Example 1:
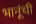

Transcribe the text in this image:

भानूंची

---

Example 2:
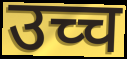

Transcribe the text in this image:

उच्च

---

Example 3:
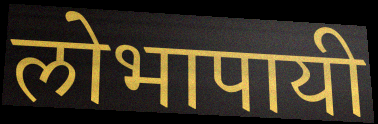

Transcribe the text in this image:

लोभापायी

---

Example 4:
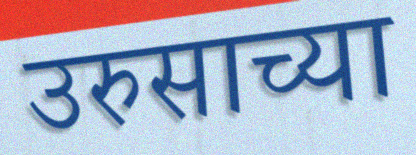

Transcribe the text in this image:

उरुसाच्या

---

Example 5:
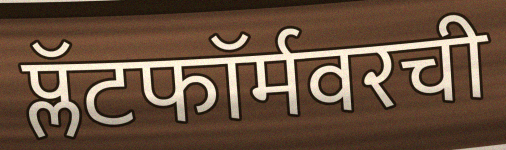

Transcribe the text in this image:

प्लॅटफॉर्मवरची